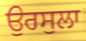
ਉਰਸੁਲਾ